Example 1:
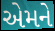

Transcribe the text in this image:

એમને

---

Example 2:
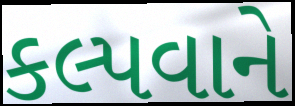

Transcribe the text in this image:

કલ્પવાને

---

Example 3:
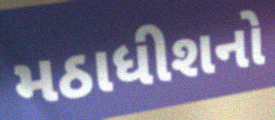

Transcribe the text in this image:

મઠાધીશનો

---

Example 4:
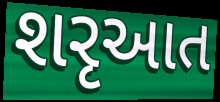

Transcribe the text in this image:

શરૃઆત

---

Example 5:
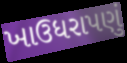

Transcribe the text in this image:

ખાઉધરાપણું